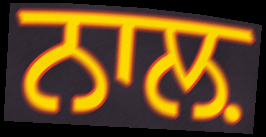
ਨਾਲ਼